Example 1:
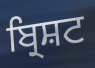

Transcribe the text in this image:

ਬ੍ਰਿਸ਼ਟ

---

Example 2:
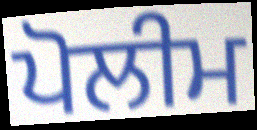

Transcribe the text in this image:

ਪੋਲੀਮ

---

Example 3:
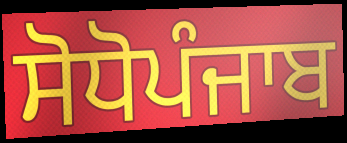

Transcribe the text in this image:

ਸੋਧੋਪੰਜਾਬ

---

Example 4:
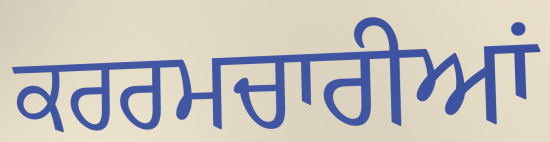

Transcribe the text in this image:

ਕਰਰਮਚਾਰੀਆਂ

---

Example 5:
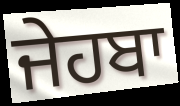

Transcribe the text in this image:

ਜੇਹਬਾ